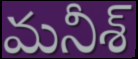
మనీశ్